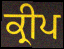
ਕ੍ਰੀਪ